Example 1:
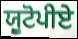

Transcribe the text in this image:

ਯੂਟੋਪੀਏ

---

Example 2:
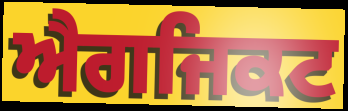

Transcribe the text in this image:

ਐਗਜਿਕਟ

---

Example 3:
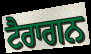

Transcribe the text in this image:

ਟੈਰਾਗਨ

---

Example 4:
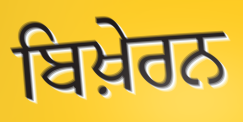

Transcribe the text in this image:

ਬਿਖ਼ੇਰਨ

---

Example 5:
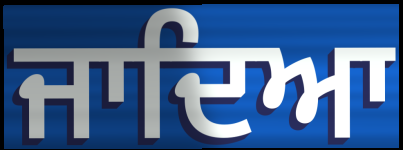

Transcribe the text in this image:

ਜਾਦਿਆ